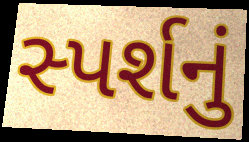
સ્પર્શનું